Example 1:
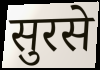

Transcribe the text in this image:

सुरसे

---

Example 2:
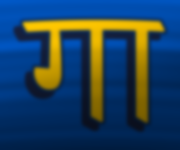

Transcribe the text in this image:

गा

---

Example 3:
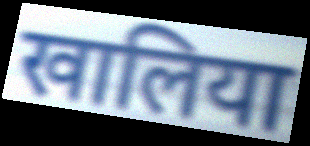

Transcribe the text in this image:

खालिया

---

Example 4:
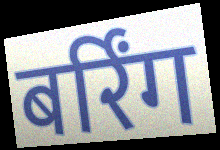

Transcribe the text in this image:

बर्रिंग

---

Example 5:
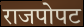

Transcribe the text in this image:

राजपोपट